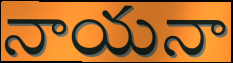
నాయనా